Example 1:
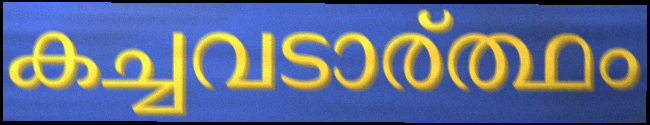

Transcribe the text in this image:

കച്ചവടാര്ത്ഥം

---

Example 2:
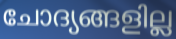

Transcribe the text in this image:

ചോദ്യങ്ങളില്ല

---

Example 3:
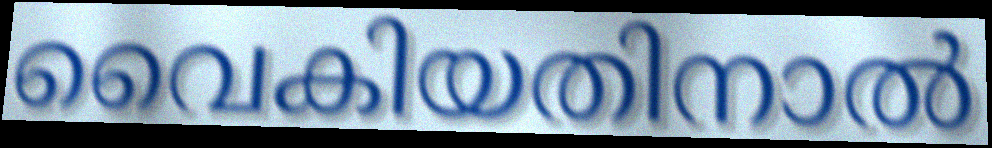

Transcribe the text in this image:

വൈകിയതിനാൽ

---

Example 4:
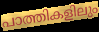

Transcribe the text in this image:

പാത്തികളിലും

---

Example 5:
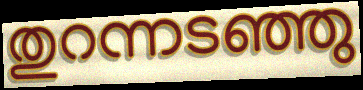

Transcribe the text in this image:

തുറന്നടഞ്ഞു